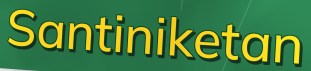
Santiniketan